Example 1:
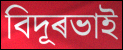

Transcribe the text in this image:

বিদূৰভাই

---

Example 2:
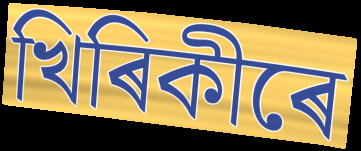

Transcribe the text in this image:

খিৰিকীৰে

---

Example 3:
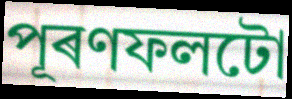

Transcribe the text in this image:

পূৰণফলটো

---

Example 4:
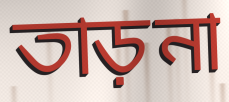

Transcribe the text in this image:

তাড়না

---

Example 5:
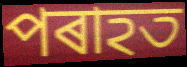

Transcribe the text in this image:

পৰাহত